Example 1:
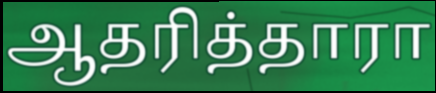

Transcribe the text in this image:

ஆதரித்தாரா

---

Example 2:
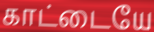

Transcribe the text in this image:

காட்டையே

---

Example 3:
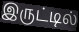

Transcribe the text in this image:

இருட்டில்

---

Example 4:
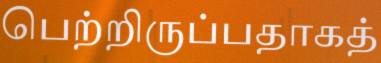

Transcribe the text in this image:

பெற்றிருப்பதாகத்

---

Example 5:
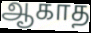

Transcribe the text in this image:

ஆகாத